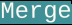
Merge